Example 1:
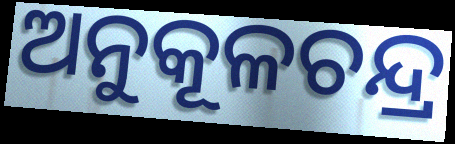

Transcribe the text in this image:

ଅନୁକୂଳଚନ୍ଦ୍ର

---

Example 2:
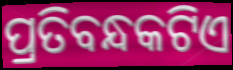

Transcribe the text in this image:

ପ୍ରତିବନ୍ଧକଟିଏ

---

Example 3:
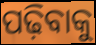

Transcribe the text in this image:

ପଢ଼ିବାକୁ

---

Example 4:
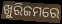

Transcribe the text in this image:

ଖୁରିଜମରେ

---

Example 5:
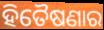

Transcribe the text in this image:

ହିତୈଷଣାର